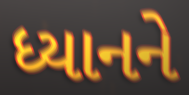
ધ્યાનને